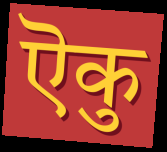
ऎकु